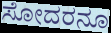
ಸೋದರನೂ